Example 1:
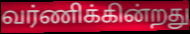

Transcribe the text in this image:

வர்ணிக்கின்றது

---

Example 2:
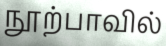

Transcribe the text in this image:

நூற்பாவில்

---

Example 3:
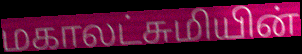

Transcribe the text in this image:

மகாலட்சுமியின்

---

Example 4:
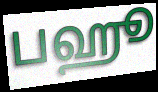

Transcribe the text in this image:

பஹூ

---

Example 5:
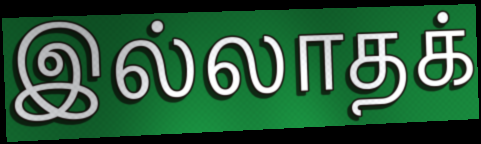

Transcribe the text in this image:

இல்லாதக்